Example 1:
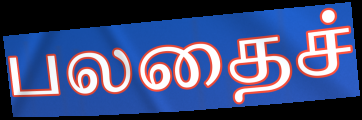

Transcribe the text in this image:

பலதைச்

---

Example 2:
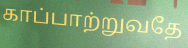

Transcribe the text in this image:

காப்பாற்றுவதே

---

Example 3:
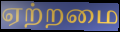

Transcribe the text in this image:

ஏற்றமை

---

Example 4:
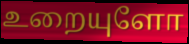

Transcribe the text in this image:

உறையுளோ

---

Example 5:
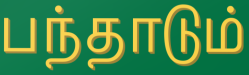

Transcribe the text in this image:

பந்தாடும்